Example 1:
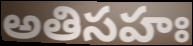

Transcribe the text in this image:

అతిసహః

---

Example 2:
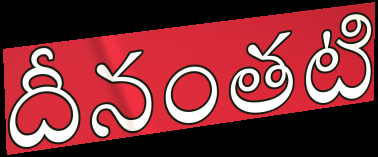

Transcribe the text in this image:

దీనంతటి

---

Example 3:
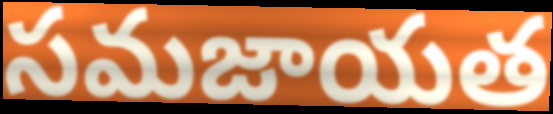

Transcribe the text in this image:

సమజాయత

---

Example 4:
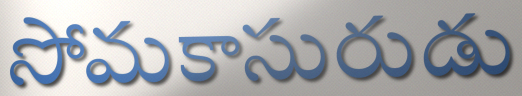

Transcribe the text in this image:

సోమకాసురుడు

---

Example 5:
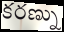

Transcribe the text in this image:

కరణ్ను